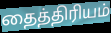
தைத்திரியம்